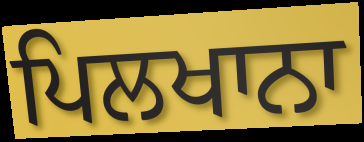
ਪਿਲਖਾਨਾ